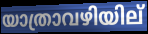
യാത്രാവഴിയില്